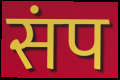
संप